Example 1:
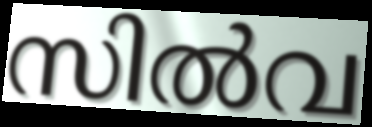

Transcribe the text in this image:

സിൽവ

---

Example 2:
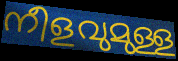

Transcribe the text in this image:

നീളവുമുള്ള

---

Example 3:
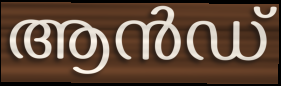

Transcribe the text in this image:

ആൻഡ്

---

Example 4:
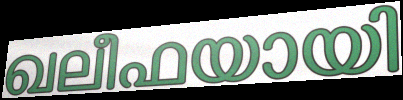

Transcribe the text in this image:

ഖലീഫയായി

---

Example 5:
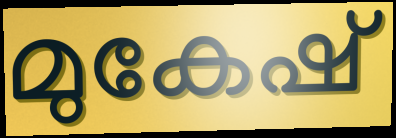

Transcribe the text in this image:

മുകേഷ്